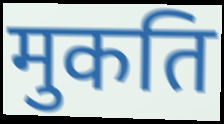
मुकति